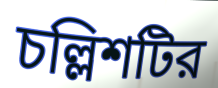
চল্লিশটির